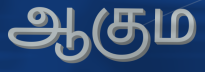
ஆகும